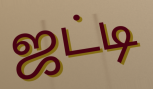
ஜட்டி